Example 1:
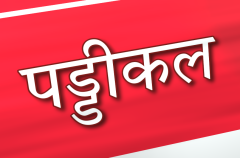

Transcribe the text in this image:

पड्डीकल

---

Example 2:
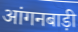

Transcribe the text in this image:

आंगनबाड़ी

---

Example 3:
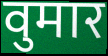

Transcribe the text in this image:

वुमार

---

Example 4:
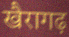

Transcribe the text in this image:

खैरागढ़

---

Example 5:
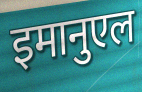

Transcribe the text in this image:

इमानुएल